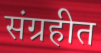
संग्रहीत